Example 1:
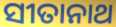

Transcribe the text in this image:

ସୀତାନାଥ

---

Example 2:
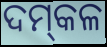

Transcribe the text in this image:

ଦମ୍‌କଳ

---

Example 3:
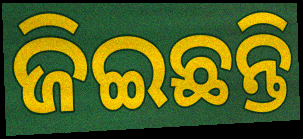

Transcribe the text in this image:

ଜିଇଛନ୍ତି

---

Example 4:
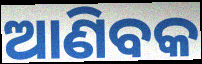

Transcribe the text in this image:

ଆଣିବକ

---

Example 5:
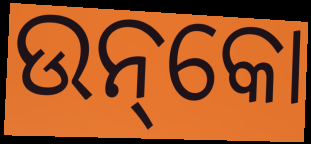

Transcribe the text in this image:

ଉନ୍‌କୋ